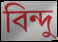
বিন্দু